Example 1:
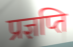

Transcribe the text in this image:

प्रज्ञप्ति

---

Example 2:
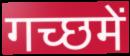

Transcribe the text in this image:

गच्छमें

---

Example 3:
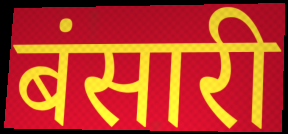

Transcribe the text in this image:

बंसारी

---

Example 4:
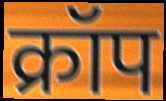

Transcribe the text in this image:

क्रॉप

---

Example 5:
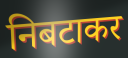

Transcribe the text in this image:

निबटाकर